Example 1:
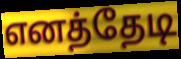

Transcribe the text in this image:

எனத்தேடி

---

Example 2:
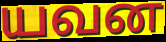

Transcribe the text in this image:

யவன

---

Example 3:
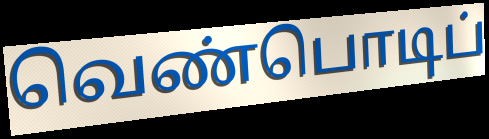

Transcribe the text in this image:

வெண்பொடிப்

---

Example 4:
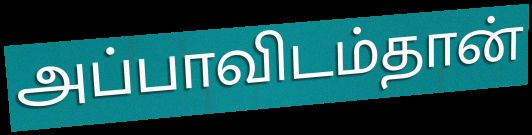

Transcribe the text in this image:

அப்பாவிடம்தான்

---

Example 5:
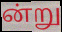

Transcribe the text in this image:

ன்று